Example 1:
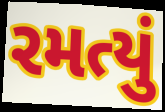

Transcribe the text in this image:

રમત્યું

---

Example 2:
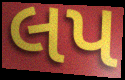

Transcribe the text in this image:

લપ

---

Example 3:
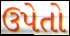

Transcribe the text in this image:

ઉપેતો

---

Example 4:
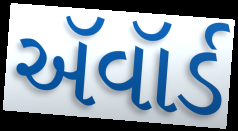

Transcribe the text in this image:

ઍવૉર્ડ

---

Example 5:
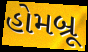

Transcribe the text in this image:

હોમબ્રૂ